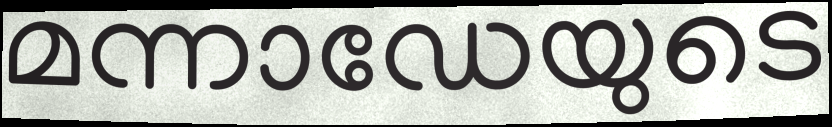
മന്നാഡേയുടെ